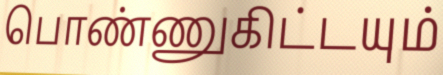
பொண்ணுகிட்டயும்